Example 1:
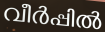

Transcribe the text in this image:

വീർപ്പിൽ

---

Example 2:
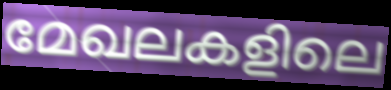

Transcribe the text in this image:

മേഖലകളിലെ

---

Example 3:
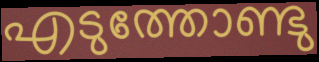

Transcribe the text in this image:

എടുത്തോണ്ടു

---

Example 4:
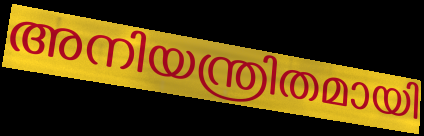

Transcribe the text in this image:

അനിയന്ത്രിതമായി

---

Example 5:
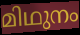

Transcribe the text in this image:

മിഥുനം